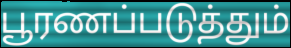
பூரணப்படுத்தும்